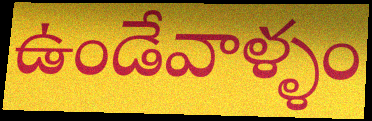
ఉండేవాళ్ళం